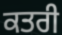
ਕਤਰੀ